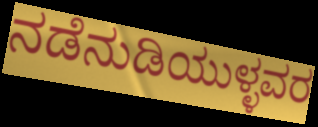
ನಡೆನುಡಿಯುಳ್ಳವರ